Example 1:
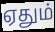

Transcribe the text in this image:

ஏதும்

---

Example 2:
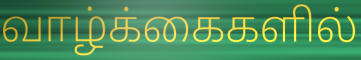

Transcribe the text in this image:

வாழ்க்கைகளில்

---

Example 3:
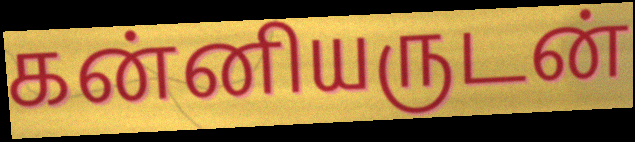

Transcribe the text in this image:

கன்னியருடன்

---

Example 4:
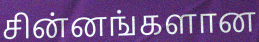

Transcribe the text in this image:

சின்னங்களான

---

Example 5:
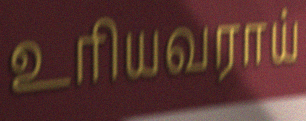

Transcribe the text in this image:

உரியவராய்